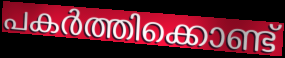
പകർത്തിക്കൊണ്ട്